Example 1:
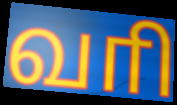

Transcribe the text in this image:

வரி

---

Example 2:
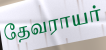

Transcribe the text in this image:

தேவராயர்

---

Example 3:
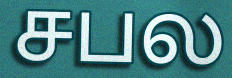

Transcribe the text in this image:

சபல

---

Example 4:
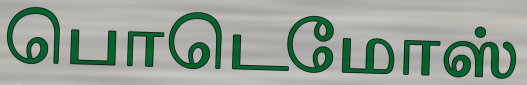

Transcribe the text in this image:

பொடெமோஸ்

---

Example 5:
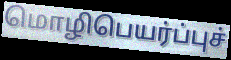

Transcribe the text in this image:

மொழிபெயர்ப்புச்